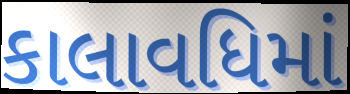
કાલાવધિમાં